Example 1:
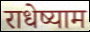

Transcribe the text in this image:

राधेष्याम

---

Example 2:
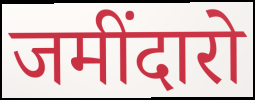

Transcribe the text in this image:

जमींदारो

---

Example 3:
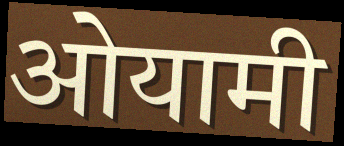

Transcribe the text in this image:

ओयामी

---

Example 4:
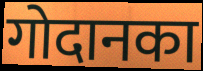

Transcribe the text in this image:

गोदानका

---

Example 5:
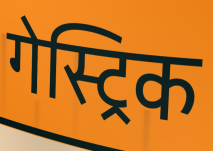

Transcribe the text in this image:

गेस्ट्रिक